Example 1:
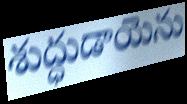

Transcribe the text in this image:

శుద్ధుడాయెను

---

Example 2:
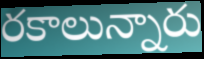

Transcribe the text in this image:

రకాలున్నారు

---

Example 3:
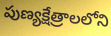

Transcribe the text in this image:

పుణ్యక్షేత్రాలలోని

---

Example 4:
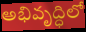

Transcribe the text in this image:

అభివృద్ధిలో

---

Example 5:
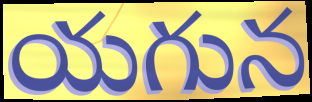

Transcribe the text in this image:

యగున